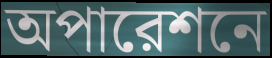
অপারেশনে